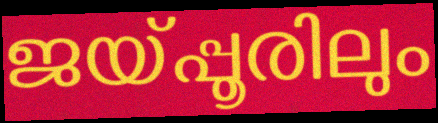
ജയ്പ്പൂരിലും